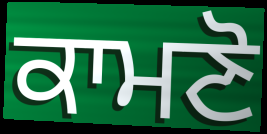
ਕਾਮਣੋ